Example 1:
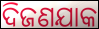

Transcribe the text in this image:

ଦିଜଣଯାକ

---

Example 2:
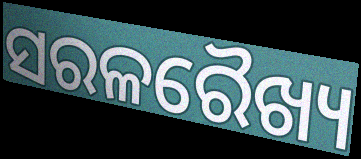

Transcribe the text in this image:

ସରଳରୈଖ୍ୟ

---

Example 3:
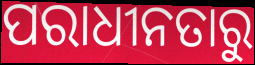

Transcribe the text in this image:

ପରାଧୀନତାରୁ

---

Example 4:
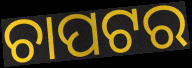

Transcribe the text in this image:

ଚାପଟର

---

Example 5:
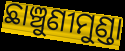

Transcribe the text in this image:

ଛାଞ୍ଚୁଣୀମୁଣ୍ଡା